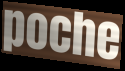
poche